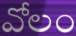
వోలం